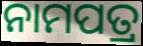
ନାମପତ୍ର